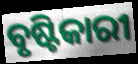
ବୃଷ୍ଟିକାରୀ